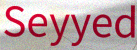
Seyyed